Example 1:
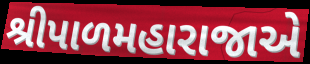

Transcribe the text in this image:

શ્રીપાળમહારાજાએ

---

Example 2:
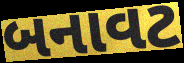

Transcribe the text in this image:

બનાવટ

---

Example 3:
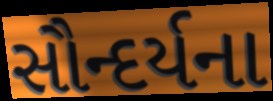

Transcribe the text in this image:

સૌન્દર્યના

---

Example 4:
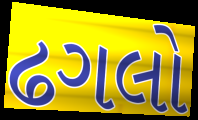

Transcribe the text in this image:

ઢગલો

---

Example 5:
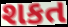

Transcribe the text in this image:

શકત